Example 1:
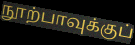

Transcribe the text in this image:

நூற்பாவுக்குப்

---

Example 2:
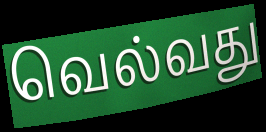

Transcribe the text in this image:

வெல்வது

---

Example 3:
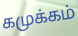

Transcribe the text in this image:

கமுக்கம்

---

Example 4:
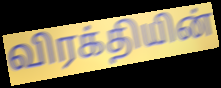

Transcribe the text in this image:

விரக்தியின்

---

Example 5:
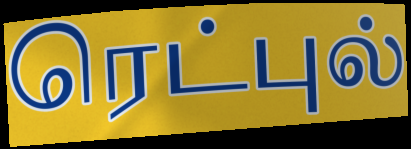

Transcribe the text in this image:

ரெட்புல்